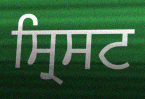
ਸ੍ਰਿਸਟ